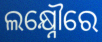
ଲକ୍ଷ୍ନୌରେ